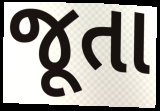
જૂતા